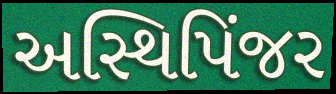
અસ્થિપિંજર